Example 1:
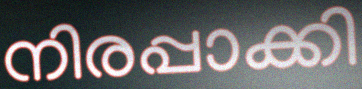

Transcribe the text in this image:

നിരപ്പാക്കി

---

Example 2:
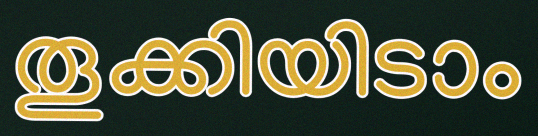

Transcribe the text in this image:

തൂക്കിയിടാം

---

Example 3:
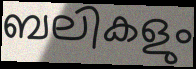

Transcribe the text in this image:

ബലികളും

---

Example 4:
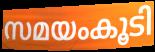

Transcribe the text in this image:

സമയംകൂടി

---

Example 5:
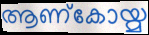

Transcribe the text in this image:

ആണ്കോയ്മ